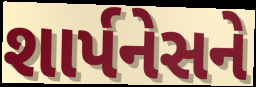
શાર્પનેસને